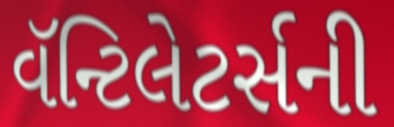
વૅન્ટિલેટર્સની